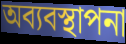
অব্যবস্থাপনা